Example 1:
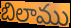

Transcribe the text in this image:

బిలాము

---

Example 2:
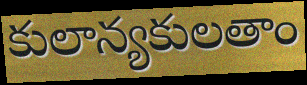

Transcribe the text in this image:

కులాన్యకులతాం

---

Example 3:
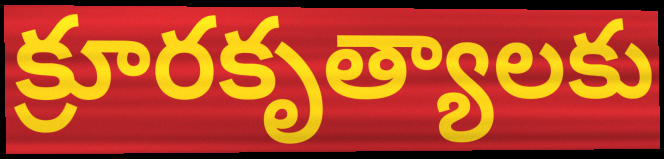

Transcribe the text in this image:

క్రూరకృత్యాలకు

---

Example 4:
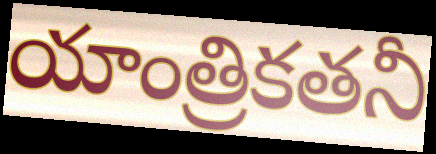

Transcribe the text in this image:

యాంత్రికతనీ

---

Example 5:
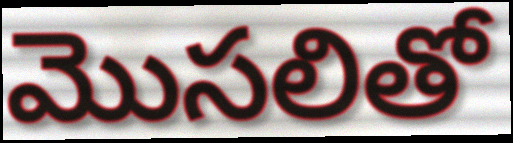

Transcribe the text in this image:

మొసలితో